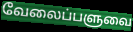
வேலைப்பளுவை